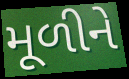
મૂળીને